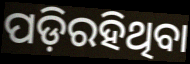
ପଡ଼ିରହିଥିବା